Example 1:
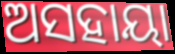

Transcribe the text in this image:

ଅସହାୟା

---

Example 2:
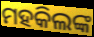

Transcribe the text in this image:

ମହକିଲଙ୍କ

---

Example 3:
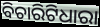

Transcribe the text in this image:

ବିଚାରିଟିଧାରା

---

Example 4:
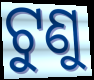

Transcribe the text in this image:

ଟୁଣୁ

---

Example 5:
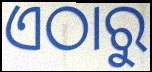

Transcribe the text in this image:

ଏଠାରୁ